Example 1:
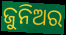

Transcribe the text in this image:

ଜୁନିଅର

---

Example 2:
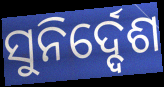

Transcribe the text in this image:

ସୁନିର୍ଦ୍ଦେଶ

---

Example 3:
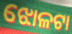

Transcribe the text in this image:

ଝୋଳଟା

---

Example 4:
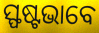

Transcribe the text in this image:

ସ୍ଫଷ୍ଟଭାବେ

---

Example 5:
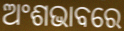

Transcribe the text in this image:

ଅଂଶଭାବରେ